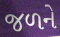
જળને